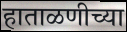
हाताळणीच्या